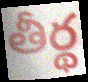
తీర్థ